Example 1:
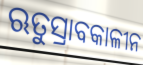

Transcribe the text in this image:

ଋତୁସ୍ରାବକାଳୀନ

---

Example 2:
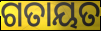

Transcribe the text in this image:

ଗତାୟତ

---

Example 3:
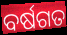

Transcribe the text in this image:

ବର୍ଷଗତ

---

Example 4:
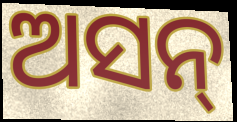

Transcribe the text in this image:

ଅସନ୍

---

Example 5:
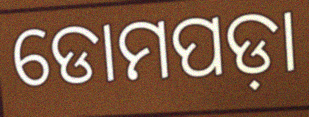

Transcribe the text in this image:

ଡୋମପଡ଼ା